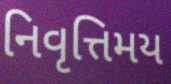
નિવૃત્તિમય